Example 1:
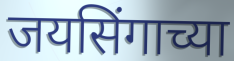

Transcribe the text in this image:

जयसिंगाच्या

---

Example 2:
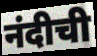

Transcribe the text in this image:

नंदीची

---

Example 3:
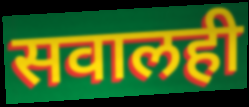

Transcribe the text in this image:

सवालही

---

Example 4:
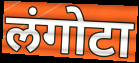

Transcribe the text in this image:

लंगोटा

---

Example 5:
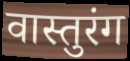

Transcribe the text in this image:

वास्तुरंग